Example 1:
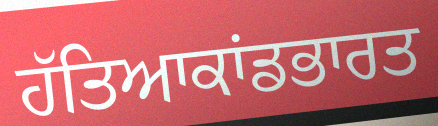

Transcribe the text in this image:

ਹੱਤਿਆਕਾਂਡਭਾਰਤ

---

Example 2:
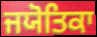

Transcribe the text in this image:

ਜਯੋਤਿਕਾ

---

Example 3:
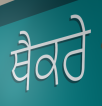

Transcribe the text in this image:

ਥੈਕਰੇ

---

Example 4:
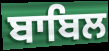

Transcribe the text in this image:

ਬਾਬਿਲ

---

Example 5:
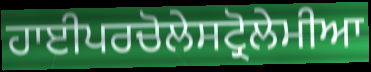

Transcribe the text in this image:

ਹਾਈਪਰਚੋਲੇਸਟ੍ਰੋਲੇਮੀਆ